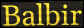
Balbir